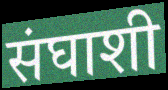
संघाशी